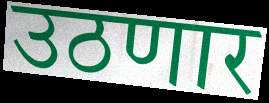
उठणार